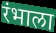
रंभाला